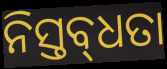
ନିସ୍ତବ୍‌ଧତା